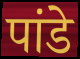
पांडे